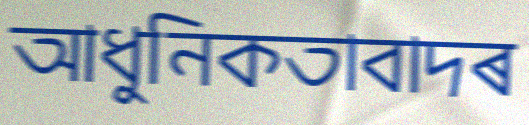
আধুনিকতাবাদৰ